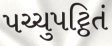
પચ્ચુપટ્ઠિતં